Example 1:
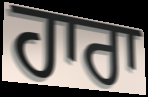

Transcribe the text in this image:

ਹਾਰਾ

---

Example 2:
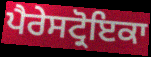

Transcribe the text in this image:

ਪੈਰੇਸਟ੍ਰੋਇਕਾ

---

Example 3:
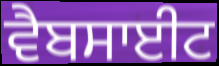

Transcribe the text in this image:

ਵੈਬਸਾਈਟ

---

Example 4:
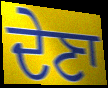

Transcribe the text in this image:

ਦੇਣਾ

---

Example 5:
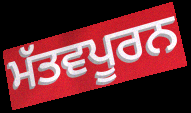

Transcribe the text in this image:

ਮੱਤਵਪੂਰਨ